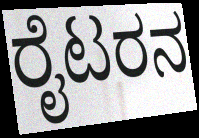
ರೈಟರನ